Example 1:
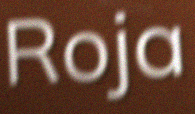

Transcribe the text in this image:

Roja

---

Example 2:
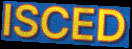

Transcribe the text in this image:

ISCED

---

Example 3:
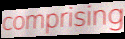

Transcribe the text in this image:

comprising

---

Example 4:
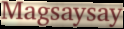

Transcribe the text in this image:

Magsaysay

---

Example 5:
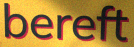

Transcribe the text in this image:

bereft